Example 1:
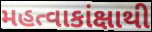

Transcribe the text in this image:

મહત્વાકાંક્ષાથી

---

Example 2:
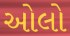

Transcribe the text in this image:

ઓલો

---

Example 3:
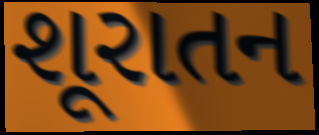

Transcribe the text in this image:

શૂરાતન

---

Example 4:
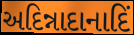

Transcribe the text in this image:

અદિન્નાદાનાદિં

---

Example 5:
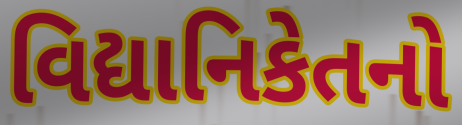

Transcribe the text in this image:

વિદ્યાનિકેતનો